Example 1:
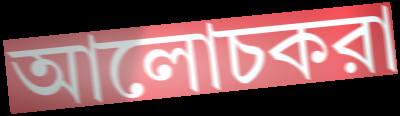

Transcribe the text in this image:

আলোচকরা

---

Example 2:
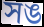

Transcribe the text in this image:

সঙ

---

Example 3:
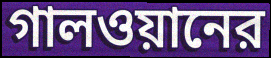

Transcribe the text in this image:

গালওয়ানের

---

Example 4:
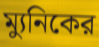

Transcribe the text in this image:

ম্যুনিকের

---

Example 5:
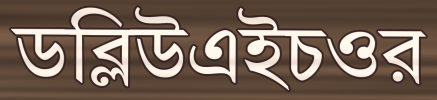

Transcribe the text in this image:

ডব্লিউএইচওর